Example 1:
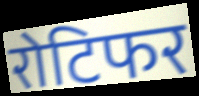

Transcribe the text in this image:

रोटिफर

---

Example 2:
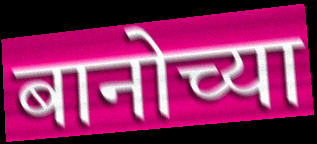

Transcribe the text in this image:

बानोच्या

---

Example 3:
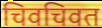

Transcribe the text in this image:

चिवचिवत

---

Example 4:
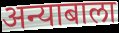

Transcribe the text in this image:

अन्याबाला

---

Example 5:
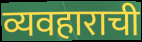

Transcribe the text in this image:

व्यवहाराची